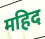
महिद